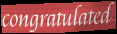
congratulated